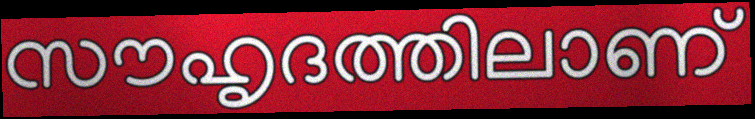
സൗഹൃദത്തിലാണ്